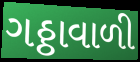
ગઠ્ઠાવાળી